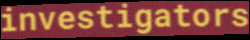
investigators